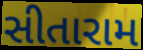
સીતારામ